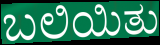
ಬಲಿಯಿತು